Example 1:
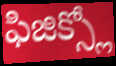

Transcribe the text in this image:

ఫిజిక్స్లో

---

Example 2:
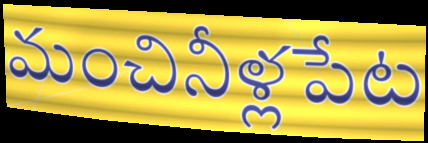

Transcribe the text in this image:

మంచినీళ్లపేట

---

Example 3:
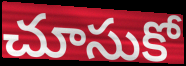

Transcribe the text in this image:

చూసుకో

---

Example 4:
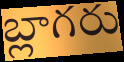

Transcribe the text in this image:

బ్లాగరు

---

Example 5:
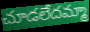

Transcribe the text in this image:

చూడలేదమ్మా